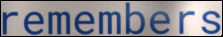
remembers